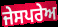
ਜੇਸਪਰੇਅ